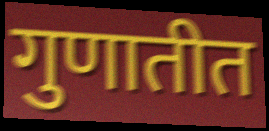
गुणातीत